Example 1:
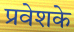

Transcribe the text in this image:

प्रवेशके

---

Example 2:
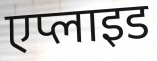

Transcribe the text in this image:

एप्लाइड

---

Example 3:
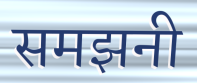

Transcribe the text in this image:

समझनी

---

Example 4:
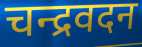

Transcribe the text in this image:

चन्द्रवदन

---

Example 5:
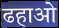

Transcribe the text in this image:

ढहाओ